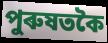
পুৰুষতকৈ